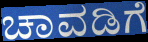
ಚಾವಡಿಗೆ